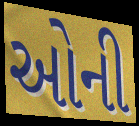
ઓની